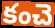
కంచె